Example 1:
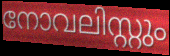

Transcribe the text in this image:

നോവലിസ്റ്റും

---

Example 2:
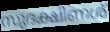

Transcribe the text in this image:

സുദക്ഷിണശ്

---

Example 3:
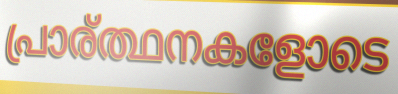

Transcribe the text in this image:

പ്രാര്ത്ഥനകളോടെ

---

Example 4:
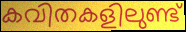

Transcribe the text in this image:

കവിതകളിലുണ്ട്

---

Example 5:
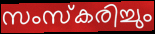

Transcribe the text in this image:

സംസ്കരിച്ചും